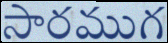
సారముగ